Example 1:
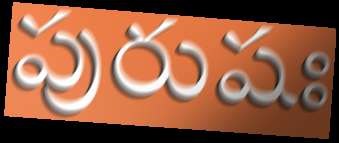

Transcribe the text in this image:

పురుషః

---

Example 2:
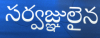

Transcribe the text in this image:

సర్వజ్ఞులైన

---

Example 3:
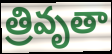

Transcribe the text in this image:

త్రివృతా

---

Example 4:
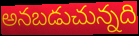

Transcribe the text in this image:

అనబడుచున్నది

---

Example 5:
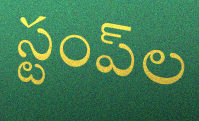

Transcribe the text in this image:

స్టంప్‌ల